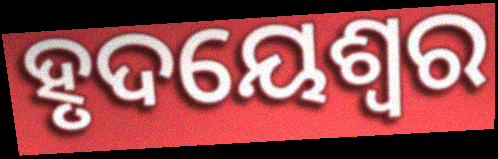
ହୃଦୟେଶ୍ୱର